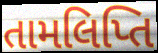
તામલિપ્તિ